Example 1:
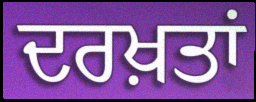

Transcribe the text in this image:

ਦਰਖ਼ਤਾਂ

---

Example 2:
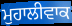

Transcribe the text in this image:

ਮੁਹਾਲੀਵਾਕ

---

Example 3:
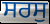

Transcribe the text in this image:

ਸਰਸੁ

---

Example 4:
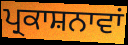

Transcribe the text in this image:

ਪ੍ਰਕਾਸ਼ਨਾਵਾਂ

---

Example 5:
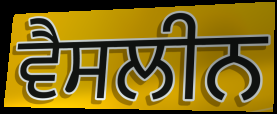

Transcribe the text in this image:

ਵੈਸਲੀਨ